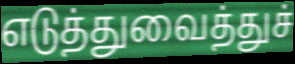
எடுத்துவைத்துச்